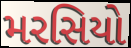
મરસિયો